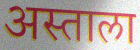
अस्ताला